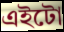
এইটো